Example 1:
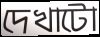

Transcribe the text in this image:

দেখাটো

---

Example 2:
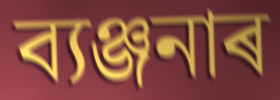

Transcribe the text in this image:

ব্যঞ্জনাৰ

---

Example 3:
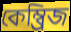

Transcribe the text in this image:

কেম্ব্ৰিজ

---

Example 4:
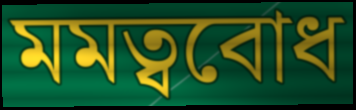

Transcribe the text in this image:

মমত্ববোধ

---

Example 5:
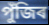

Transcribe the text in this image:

পুঁজিৰ